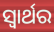
ସ୍ଵାର୍ଥର